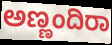
ಅಣ್ಣಂದಿರಾ